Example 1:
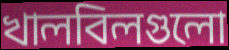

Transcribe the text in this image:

খালবিলগুলো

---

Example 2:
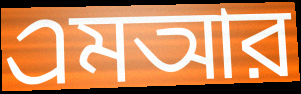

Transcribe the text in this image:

এমআর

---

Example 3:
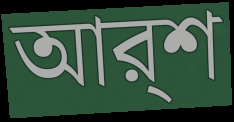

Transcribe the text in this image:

আর্‌শ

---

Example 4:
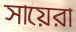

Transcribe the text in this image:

সায়েরা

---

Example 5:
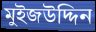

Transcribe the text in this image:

মুইজউদ্দিন